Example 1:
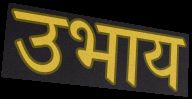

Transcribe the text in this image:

उभाय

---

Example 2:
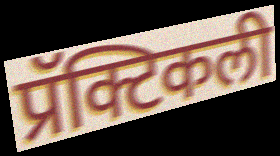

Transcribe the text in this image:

प्रॅक्टिकली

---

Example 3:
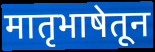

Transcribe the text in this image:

मातृभाषेतून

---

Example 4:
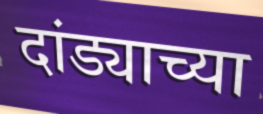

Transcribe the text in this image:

दांड्याच्या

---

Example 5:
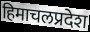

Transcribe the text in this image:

हिमाचलप्रदेश